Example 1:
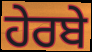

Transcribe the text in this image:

ਹੇਰਬੇ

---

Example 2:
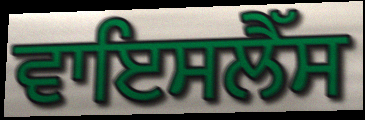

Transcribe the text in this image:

ਵਾਇਸਲੈੱਸ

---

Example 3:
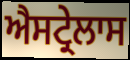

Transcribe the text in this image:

ਐਸਟ੍ਰੇਲਾਸ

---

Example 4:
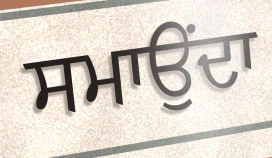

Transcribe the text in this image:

ਸਮਾਉਂਦਾ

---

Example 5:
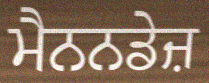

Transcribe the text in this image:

ਮੈਨਨਡੇਜ਼